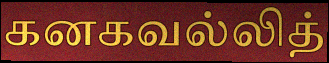
கனகவல்லித்